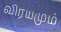
விரயமும்